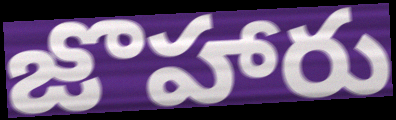
జొహారు